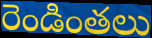
రెండింతలు